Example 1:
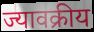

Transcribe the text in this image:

ज्यावक्रीय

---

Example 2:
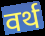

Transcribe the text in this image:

वर्थ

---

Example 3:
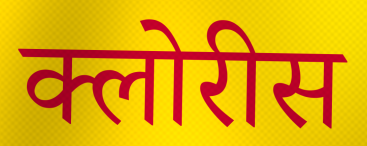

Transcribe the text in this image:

क्लोरीस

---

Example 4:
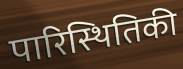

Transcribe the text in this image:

पारिस्थितिकी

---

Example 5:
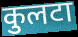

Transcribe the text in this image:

कुलटा